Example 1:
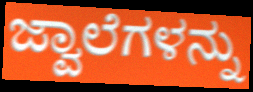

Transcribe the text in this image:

ಜ್ವಾಲೆಗಳನ್ನು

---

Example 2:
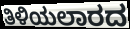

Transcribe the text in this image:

ತಿಳಿಯಲಾರದ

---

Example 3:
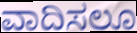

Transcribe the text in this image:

ವಾದಿಸಲೂ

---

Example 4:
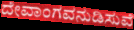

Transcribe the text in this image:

ದೇವಾಂಗವನುಡಿಸುವೆ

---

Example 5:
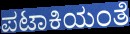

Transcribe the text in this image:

ಪಟಾಕಿಯಂತೆ